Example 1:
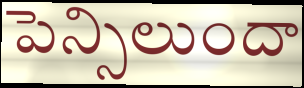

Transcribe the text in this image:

పెన్సిలుందా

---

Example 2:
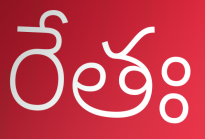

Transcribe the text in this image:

రేతః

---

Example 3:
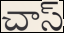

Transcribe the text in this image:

చాస్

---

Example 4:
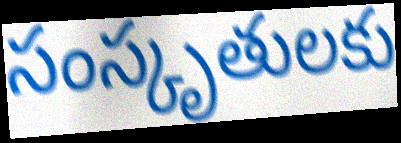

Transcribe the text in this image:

సంస్కృతులకు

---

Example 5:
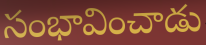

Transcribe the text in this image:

సంభావించాడు